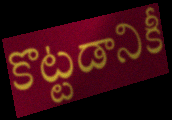
కొట్టడానికీ